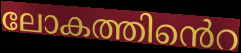
ലോകത്തിൻെറ